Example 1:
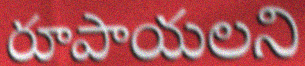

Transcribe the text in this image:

రూపాయలని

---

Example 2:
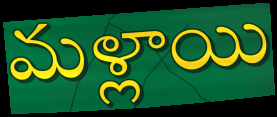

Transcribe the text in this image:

మళ్లాయి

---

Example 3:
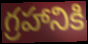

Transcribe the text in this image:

గ్రహానికి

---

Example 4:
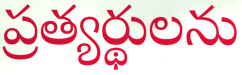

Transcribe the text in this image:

ప్రత్యర్థులను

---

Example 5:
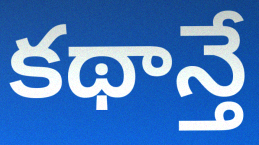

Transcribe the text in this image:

కథాన్తే